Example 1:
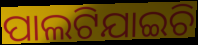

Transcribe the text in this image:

ପାଲଟିଯାଇଚି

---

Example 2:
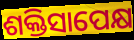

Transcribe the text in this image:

ଶକ୍ତିସାପେକ୍ଷ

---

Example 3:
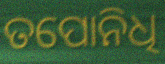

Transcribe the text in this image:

ତପୋନିଧି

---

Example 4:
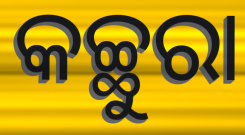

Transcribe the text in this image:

କଚ୍ଛୁରା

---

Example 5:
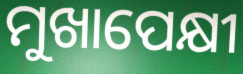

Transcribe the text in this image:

ମୁଖାପେକ୍ଷୀ